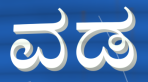
ವಡ